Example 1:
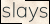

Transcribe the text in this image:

slays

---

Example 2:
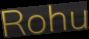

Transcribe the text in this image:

Rohu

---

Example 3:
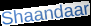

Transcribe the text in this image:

Shaandaar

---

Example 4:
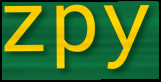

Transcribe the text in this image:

zpy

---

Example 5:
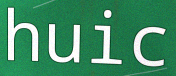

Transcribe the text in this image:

huic